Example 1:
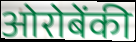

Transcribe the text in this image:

ओरोबेंकी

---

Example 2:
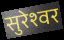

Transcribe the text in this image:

सुरेश्वर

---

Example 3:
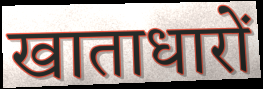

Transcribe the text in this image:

खाताधारों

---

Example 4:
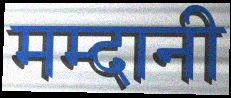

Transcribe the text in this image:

मम्दानी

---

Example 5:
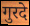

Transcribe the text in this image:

गुरदे